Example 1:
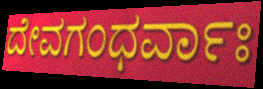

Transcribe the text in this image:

ದೇವಗಂಧರ್ವಾಃ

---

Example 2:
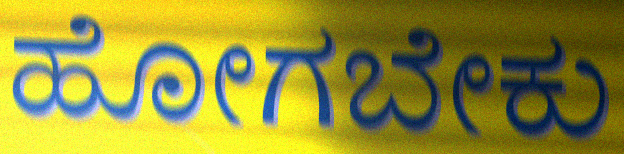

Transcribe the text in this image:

ಹೋಗಬೇಕು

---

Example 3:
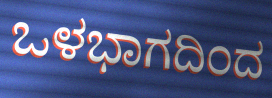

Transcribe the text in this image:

ಒಳಭಾಗದಿಂದ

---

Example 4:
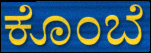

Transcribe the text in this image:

ಕೊಂಬೆ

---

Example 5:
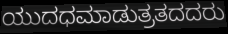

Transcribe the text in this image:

ಯುದಧಮಾಡುತ್ರತದದರು